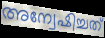
അന്വേഷിച്ചത്